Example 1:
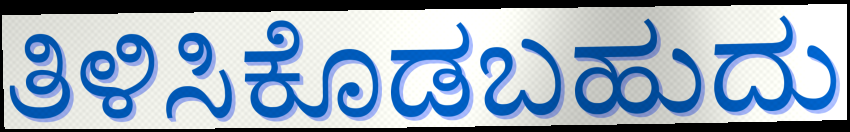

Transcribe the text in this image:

ತಿಳಿಸಿಕೊಡಬಹುದು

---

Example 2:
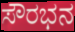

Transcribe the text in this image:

ಸೌರಭನ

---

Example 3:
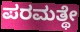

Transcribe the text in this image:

ಪರಮತ್ಥೇ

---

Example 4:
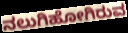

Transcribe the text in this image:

ನಲುಗಿಹೋಗಿರುವ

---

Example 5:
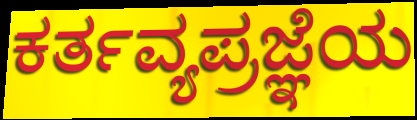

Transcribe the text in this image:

ಕರ್ತವ್ಯಪ್ರಜ್ಞೆಯ